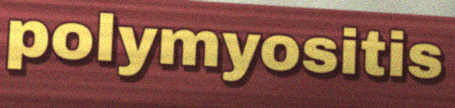
polymyositis